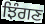
ਝਿੰਗਣ